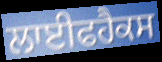
ਲਾਈਫਹੈਕਸ